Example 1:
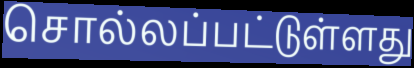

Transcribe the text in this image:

சொல்லப்பட்டுள்ளது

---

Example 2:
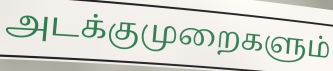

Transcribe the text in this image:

அடக்குமுறைகளும்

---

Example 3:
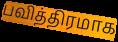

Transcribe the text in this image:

பவித்திரமாக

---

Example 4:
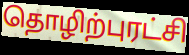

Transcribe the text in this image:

தொழிற்புரட்சி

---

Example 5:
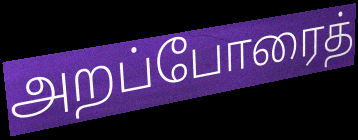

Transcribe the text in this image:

அறப்போரைத்